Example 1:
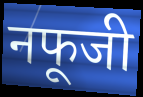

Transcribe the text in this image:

नफूजी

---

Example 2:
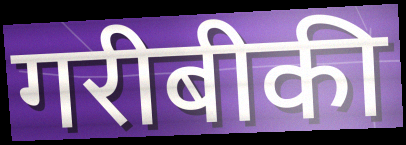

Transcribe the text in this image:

गरीबीकी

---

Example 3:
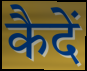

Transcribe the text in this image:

कैदें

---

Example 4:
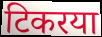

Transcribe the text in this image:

टिकरया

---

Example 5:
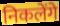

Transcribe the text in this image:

निकलेंगे